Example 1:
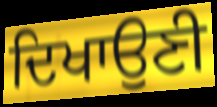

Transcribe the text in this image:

ਦਿਖਾਉਣੀ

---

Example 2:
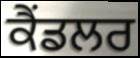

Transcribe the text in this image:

ਕੈਂਡਲਰ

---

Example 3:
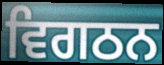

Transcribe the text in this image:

ਵਿਗਠਨ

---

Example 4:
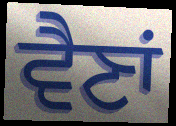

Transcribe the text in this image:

ਵੈਣਾਂ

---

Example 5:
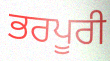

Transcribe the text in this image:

ਭਰਪੂਰੀ